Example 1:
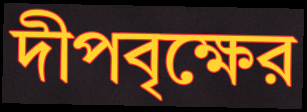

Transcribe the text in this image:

দীপবৃক্ষের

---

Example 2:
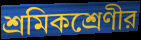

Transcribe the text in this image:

শ্রমিকশ্রেণীর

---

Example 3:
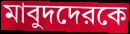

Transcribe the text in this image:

মাবুদদেরকে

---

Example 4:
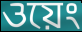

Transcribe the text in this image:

ওয়েং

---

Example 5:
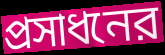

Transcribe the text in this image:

প্রসাধনের